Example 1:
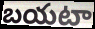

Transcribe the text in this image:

బయటా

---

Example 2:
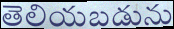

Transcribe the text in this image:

తెలియబడును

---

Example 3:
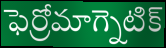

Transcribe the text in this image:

ఫెర్రోమాగ్నెటిక్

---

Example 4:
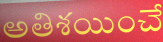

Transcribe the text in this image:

అతిశయించే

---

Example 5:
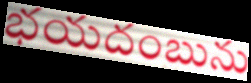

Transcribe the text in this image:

భయదంబును